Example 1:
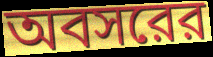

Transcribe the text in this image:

অবসরের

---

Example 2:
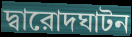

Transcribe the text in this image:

দ্বারোদঘাটন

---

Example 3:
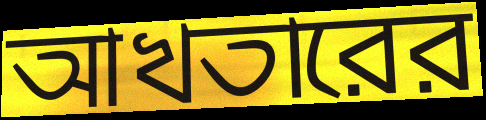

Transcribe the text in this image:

আখতারের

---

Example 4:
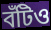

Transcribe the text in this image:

বঁটিও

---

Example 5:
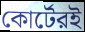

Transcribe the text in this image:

কোর্টেরই